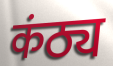
कंठ्य